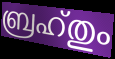
ബ്രഹ്തും